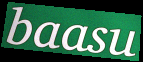
baasu